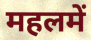
महलमें